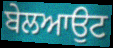
ਬੇਲਆਉਟ